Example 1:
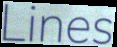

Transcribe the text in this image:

Lines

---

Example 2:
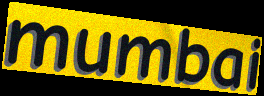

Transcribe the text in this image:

mumbai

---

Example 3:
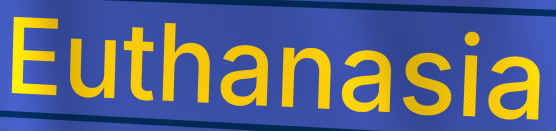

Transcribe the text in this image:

Euthanasia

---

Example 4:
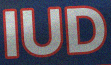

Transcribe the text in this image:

IUD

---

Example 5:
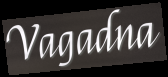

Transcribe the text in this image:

Vagadna